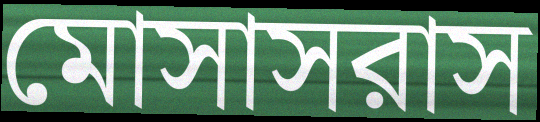
মোসাসরাস